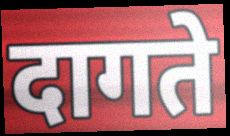
दागते